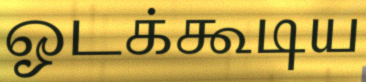
ஓடக்கூடிய